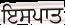
ਇਸਪਾਤ